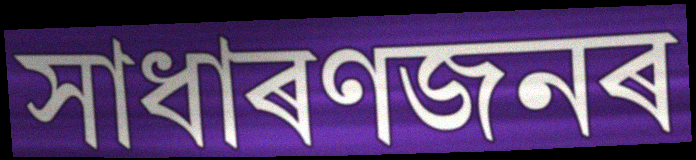
সাধাৰণজনৰ